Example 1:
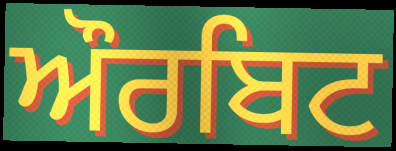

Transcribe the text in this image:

ਔਰਬਿਟ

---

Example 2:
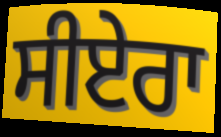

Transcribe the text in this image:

ਸੀਏਰਾ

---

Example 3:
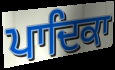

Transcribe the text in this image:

ਪਾਦਿਕਾ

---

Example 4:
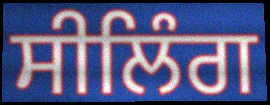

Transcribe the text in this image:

ਸੀਲਿੰਗ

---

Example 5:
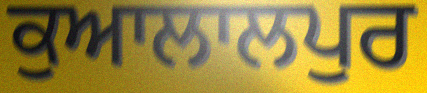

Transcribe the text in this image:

ਕੁਆਲਾਲਪੁਰ